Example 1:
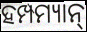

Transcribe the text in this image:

ହମ୍ପମ୍ୟାନ୍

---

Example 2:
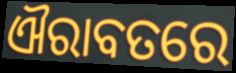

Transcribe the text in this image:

ଐରାବତରେ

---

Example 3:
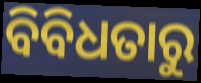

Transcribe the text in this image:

ବିବିଧତାରୁ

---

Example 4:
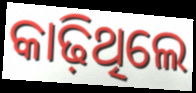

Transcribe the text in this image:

କାଢ଼ିଥିଲେ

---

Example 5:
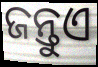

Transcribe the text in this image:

ଜନ୍ତୁଏ